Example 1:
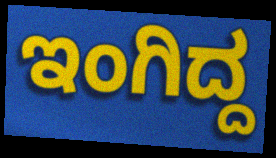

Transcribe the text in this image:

ಇಂಗಿದ್ದ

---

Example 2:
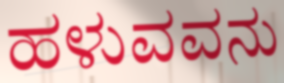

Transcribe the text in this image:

ಹಳುವವನು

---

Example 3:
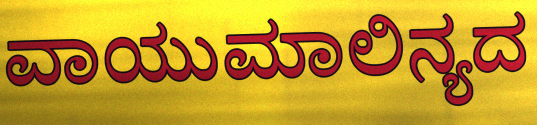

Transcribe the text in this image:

ವಾಯುಮಾಲಿನ್ಯದ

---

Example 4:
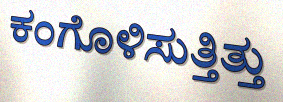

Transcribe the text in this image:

ಕಂಗೊಳಿಸುತ್ತಿತ್ತು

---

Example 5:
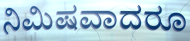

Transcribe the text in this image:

ನಿಮಿಷವಾದರೂ